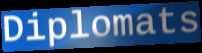
Diplomats